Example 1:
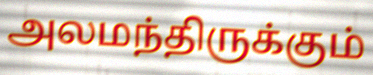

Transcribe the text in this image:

அலமந்திருக்கும்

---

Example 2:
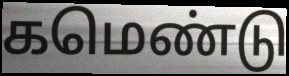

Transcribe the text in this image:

கமெண்டு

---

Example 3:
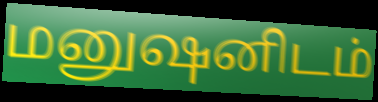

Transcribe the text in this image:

மனுஷனிடம்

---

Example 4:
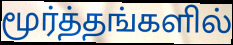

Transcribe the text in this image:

மூர்த்தங்களில்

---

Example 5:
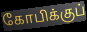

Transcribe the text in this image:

கோபிக்குப்